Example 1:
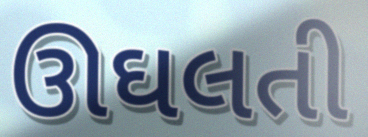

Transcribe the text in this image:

ઊઘલતી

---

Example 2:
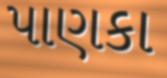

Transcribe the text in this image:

પાણકા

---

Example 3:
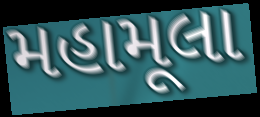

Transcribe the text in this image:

મહામૂલા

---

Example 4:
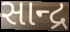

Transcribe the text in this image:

સાન્દ્ર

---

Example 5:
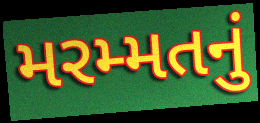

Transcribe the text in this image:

મરમ્મતનું